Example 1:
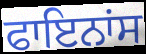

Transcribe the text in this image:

ਫਾਇਨਾਂਸ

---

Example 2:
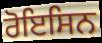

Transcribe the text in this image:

ਰੋਇਸਿਨ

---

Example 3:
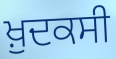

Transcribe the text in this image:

ਖ਼ੁਦਕਸੀ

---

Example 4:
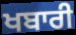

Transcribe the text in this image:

ਖਬਾਰੀ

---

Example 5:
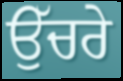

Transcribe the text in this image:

ਉੱਚਰੇ